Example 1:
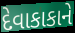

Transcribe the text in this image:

દેવાકાકાને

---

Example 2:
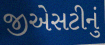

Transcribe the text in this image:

જીએસટીનું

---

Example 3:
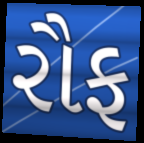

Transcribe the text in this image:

રૌફ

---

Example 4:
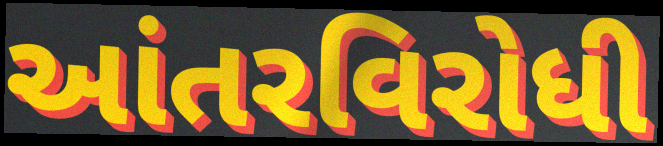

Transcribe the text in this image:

આંતરવિરોધી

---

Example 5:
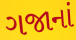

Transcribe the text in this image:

ગજાનાં